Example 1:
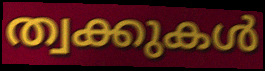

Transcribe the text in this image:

ത്വക്കുകൾ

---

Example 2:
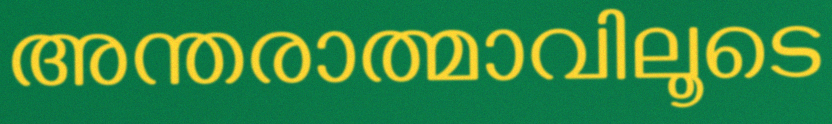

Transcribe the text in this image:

അന്തരാത്മാവിലൂടെ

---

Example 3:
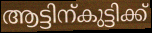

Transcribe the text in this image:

ആട്ടിന്കുട്ടിക്ക്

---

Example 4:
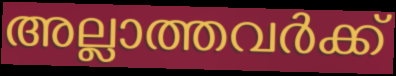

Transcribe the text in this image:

അല്ലാത്തവർക്ക്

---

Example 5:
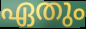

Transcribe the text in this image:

ഏതും